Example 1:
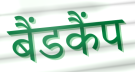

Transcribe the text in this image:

बैंडकैंप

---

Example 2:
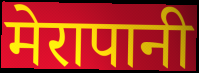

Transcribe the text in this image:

मेरापानी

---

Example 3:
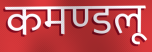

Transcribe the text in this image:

कमण्डलू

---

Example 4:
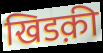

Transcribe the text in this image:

खिडक़ी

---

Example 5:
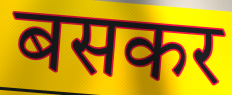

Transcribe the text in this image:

बसकर